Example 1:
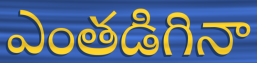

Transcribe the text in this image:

ఎంతడిగినా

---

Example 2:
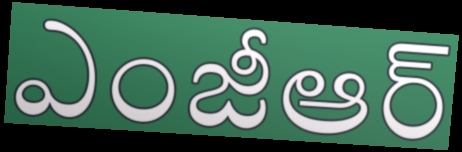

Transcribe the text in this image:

ఎంజీఆర్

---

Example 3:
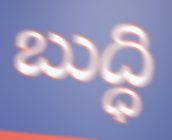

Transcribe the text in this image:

బుద్ధి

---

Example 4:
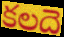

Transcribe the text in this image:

కలదె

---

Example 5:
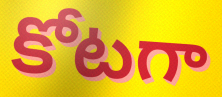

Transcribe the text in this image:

కోటగా